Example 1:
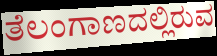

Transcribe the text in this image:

ತೆಲಂಗಾಣದಲ್ಲಿರುವ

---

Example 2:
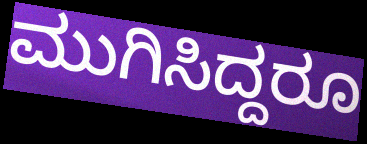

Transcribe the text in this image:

ಮುಗಿಸಿದ್ದರೂ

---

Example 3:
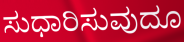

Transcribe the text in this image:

ಸುಧಾರಿಸುವುದೂ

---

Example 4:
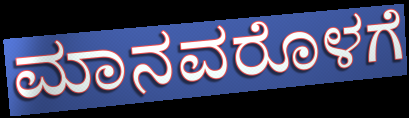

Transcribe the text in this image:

ಮಾನವರೊಳಗೆ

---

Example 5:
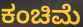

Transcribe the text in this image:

ಕಂಚಿಮೆ